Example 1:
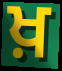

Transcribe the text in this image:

ਖ਼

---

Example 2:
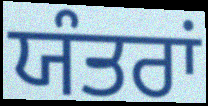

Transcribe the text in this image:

ਯੰਤਰਾਂ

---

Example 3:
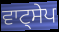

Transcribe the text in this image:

ਵਾਟ੍ਸੇਪ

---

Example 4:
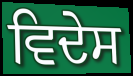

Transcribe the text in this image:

ਵਿਦੇਸ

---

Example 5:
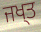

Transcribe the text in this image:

ਜਖ੍ਤ